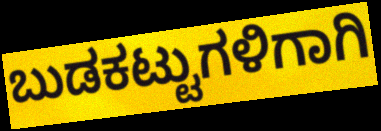
ಬುಡಕಟ್ಟುಗಳಿಗಾಗಿ